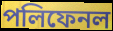
পলিফেনল